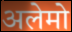
अलेमो